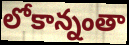
లోకాన్నంతా